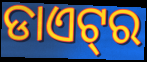
ଡାଏଟ୍‌ର